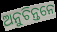
ଅନୁଚିନ୍ତନେ